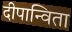
दीपान्विता